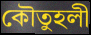
কৌতুহলী